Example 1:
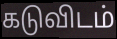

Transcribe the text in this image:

கடுவிடம்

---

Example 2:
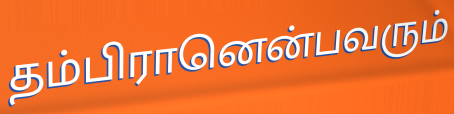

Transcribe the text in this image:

தம்பிரானென்பவரும்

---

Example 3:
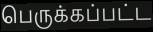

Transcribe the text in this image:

பெருக்கப்பட்ட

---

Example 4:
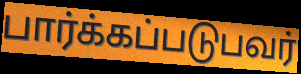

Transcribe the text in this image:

பார்க்கப்படுபவர்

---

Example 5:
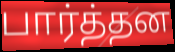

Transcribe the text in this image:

பார்த்தன